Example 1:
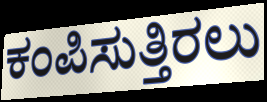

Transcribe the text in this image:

ಕಂಪಿಸುತ್ತಿರಲು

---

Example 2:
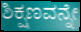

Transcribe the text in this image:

ಶಿಕ್ಷಣವನ್ನೇ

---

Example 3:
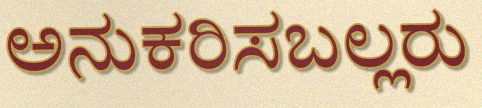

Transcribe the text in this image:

ಅನುಕರಿಸಬಲ್ಲರು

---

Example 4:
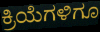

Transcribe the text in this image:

ಕ್ರಿಯೆಗಳಿಗೂ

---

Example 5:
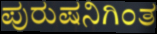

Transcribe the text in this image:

ಪುರುಷನಿಗಿಂತ